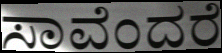
ಸಾವೆಂದರೆ